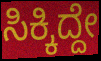
ಸಿಕ್ಕಿದ್ದೇ